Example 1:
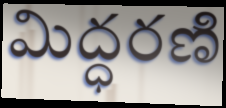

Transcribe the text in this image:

మిద్ధరణి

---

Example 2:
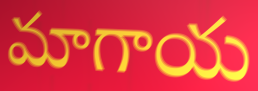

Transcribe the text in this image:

మాగాయ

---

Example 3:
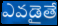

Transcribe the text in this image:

ఎవడైతే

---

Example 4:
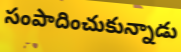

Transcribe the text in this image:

సంపాదించుకున్నాడు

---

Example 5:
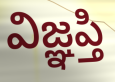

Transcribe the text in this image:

విజ్ఞప్తి